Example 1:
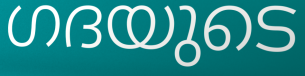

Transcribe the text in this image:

ഗദയുടെ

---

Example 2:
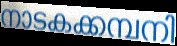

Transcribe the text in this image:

നാടകക്കമ്പനി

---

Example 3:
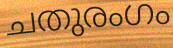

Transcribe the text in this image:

ചതുരംഗം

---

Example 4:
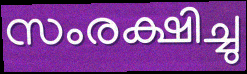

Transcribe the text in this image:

സംരക്ഷിച്ചു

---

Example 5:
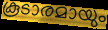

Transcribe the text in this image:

കൂടാരമായും